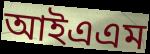
আইএএম